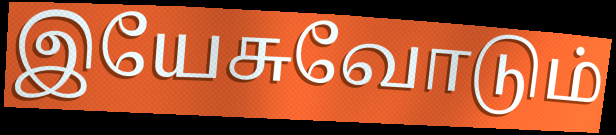
இயேசுவோடும்